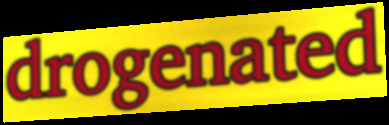
drogenated